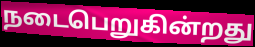
நடைபெறுகின்றது